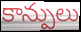
కాన్పులు